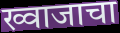
ख्वाजाचा